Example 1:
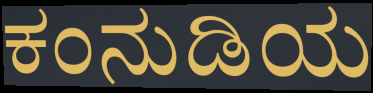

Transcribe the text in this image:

ಕಂನುಡಿಯ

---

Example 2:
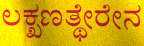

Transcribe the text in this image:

ಲಕ್ಖಣತ್ಥೇರೇನ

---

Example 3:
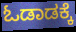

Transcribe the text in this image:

ಓಡಾಡಕ್ಕೆ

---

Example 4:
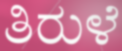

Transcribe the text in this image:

ತಿರುಳೆ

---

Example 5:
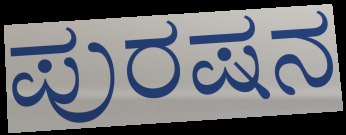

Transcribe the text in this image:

ಪುರಷನ